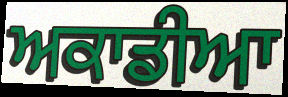
ਅਕਾਡੀਆ